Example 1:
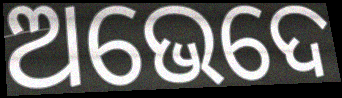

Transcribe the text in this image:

ଅଭେଦେ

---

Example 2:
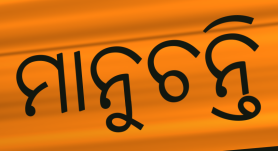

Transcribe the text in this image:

ମାନୁଚନ୍ତି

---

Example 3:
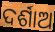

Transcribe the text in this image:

ଦର୍ଶାଅ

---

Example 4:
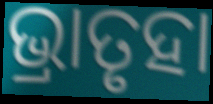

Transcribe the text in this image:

ଭ୍ରାତୃହା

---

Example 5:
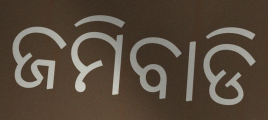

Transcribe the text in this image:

ଜମିବାଡି